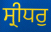
ਸ੍ਰੀਧਰੁ